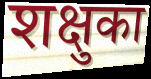
शक्षुका